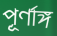
পূর্ণাঙ্গ